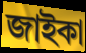
জাইকা